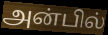
அன்பில்